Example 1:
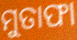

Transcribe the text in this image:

ମୁତାଫା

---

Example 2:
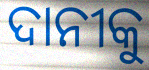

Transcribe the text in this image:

ଦାନୀକୁ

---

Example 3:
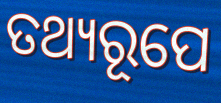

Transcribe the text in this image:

ତଥ୍ୟରୂପେ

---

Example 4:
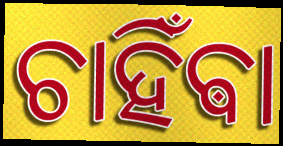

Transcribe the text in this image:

ଚାହିଁଵା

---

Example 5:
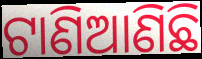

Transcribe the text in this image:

ଟାଣିଆଣିଛି